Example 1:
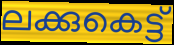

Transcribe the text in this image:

ലക്കുകെട്ട്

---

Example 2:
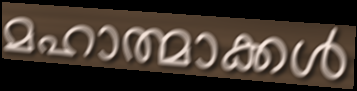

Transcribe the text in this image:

മഹാത്മാക്കൾ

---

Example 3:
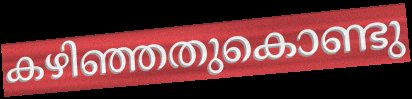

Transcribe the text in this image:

കഴിഞ്ഞതുകൊണ്ടു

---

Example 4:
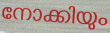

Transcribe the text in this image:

നോക്കിയും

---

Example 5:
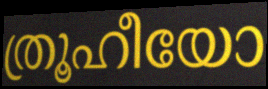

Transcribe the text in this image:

ത്രൂഹീയോ